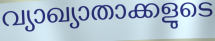
വ്യാഖ്യാതാക്കളുടെ